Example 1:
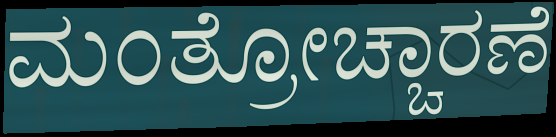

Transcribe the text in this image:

ಮಂತ್ರೋಚ್ಚಾರಣೆ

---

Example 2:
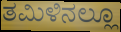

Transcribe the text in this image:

ತಮಿಳಿನಲ್ಲೂ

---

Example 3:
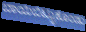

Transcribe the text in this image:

ಬಾಯಿಬಿಟ್ಟುಕೊಂಡು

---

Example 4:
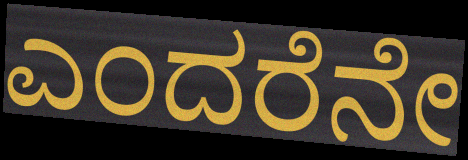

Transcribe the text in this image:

ಎಂದರೆನೇ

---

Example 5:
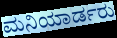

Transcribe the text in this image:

ಮನಿಯಾರ್ಡರು